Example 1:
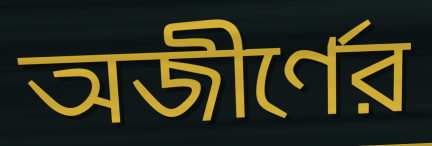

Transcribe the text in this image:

অজীর্ণের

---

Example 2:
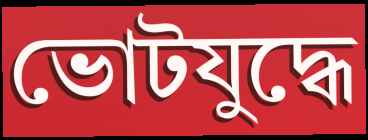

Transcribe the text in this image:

ভোটযুদ্ধে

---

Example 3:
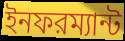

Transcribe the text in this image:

ইনফরম্যান্ট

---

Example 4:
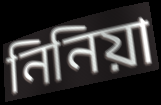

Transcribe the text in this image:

নিনিয়া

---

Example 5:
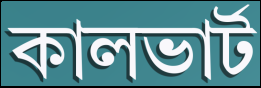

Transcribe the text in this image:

কালভার্ট